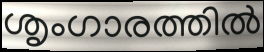
ശൃംഗാരത്തിൽ